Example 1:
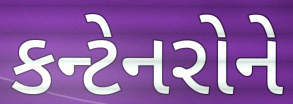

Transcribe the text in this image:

કન્ટેનરોને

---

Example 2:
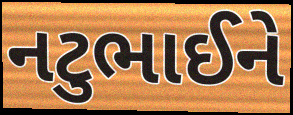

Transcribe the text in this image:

નટુભાઈને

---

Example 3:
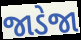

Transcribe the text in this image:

જાડેજા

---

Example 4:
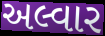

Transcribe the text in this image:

અલ્વાર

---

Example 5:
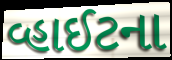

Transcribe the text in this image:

વ્હાઈટના